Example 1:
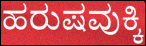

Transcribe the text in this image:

ಹರುಷವುಕ್ಕಿ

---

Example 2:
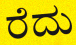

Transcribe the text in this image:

ರೆದು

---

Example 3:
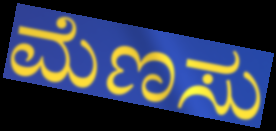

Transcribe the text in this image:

ಮೆಣಸು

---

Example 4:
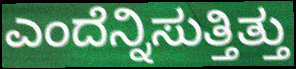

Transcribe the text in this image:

ಎಂದೆನ್ನಿಸುತ್ತಿತ್ತು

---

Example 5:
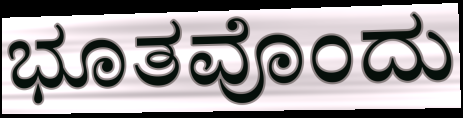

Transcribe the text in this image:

ಭೂತವೊಂದು